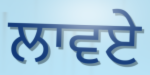
ਲਾਵਏ